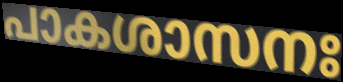
പാകശാസനഃ